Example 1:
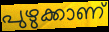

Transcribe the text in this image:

പുഴുക്കാണ്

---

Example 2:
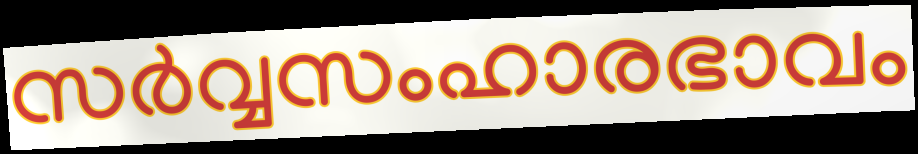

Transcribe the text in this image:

സർവ്വസംഹാരഭാവം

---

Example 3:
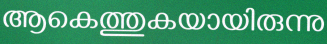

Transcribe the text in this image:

ആകെത്തുകയായിരുന്നു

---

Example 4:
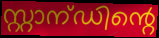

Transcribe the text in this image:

സ്റ്റാന്ഡിന്റെ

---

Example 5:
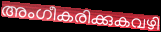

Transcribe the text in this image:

അംഗീകരിക്കുകവഴി